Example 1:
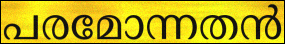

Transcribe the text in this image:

പരമോന്നതൻ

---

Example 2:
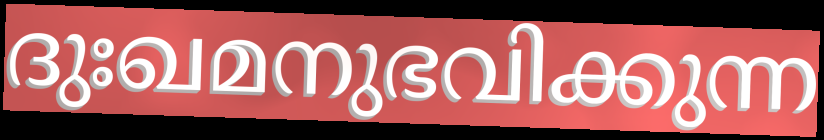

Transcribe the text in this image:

ദുഃഖമനുഭവിക്കുന്ന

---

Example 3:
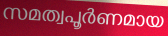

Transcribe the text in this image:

സമത്വപൂർണമായ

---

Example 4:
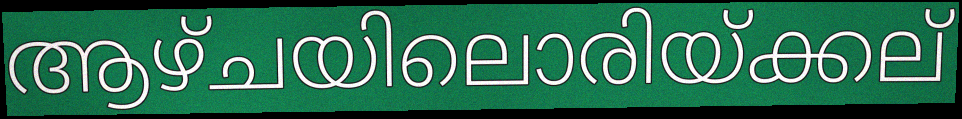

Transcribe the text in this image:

ആഴ്ചയിലൊരിയ്ക്കല്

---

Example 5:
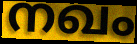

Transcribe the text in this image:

നഖം